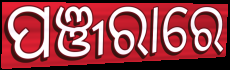
ପଞ୍ଜରାରେ